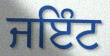
ਜਇੰਟ